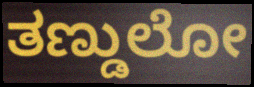
ತಣ್ಡುಲೋ